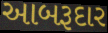
આબરૂદાર